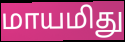
மாயமிது